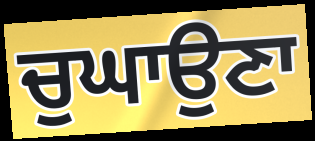
ਚੁਘਾਉਣਾ